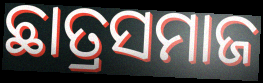
ଛାତ୍ରସମାଜ